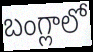
బంగ్లాలో